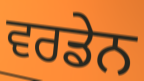
ਵਰਡੇਨ